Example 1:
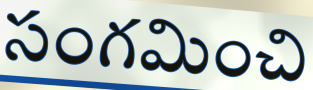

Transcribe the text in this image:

సంగమించి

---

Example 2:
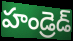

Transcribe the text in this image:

హండ్రెడ్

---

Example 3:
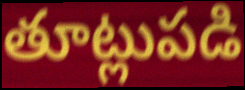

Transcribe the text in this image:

తూట్లుపడి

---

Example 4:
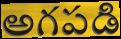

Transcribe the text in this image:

అగపడి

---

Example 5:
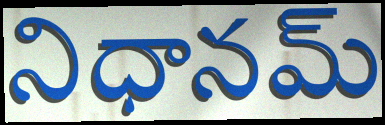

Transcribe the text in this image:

నిధానమ్